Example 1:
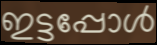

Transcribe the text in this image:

ഇട്ടപ്പോൾ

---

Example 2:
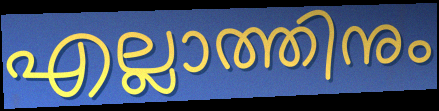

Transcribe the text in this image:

എല്ലാത്തിനും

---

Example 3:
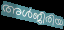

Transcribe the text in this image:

അൾജീരിയ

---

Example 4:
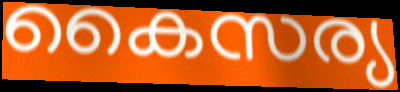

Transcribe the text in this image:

കൈസര്യ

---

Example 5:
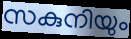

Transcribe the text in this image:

സകുനിയും